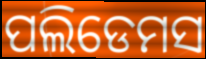
ପଲିଡେମସ